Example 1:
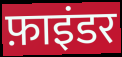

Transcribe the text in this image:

फ़ाइंडर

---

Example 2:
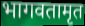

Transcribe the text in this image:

भागवतामृत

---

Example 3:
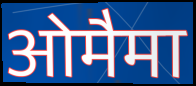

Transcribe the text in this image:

ओमैमा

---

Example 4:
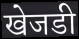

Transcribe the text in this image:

खेजडी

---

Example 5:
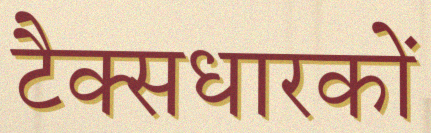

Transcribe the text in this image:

टैक्सधारकों